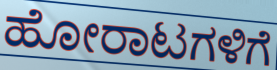
ಹೋರಾಟಗಳಿಗೆ